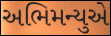
અભિમન્યુએ